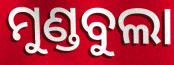
ମୁଣ୍ଡବୁଲା